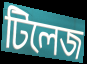
টিলেজ